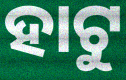
ହାଟୁ